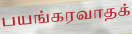
பயங்கரவாதக்